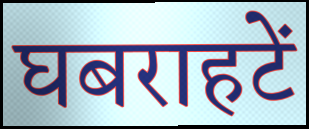
घबराहटें